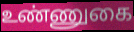
உண்ணுகை